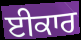
ਈਕਾਰ